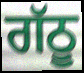
ਗੱਠੂ